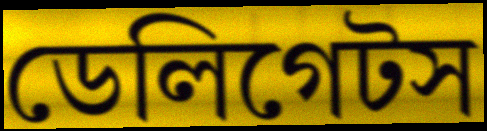
ডেলিগেটস